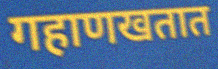
गहाणखतात